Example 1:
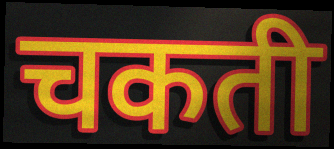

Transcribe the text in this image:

चकती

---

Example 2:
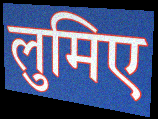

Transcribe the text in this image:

लुमिए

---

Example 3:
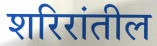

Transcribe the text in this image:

शरिरांतील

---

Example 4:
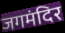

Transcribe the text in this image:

जगमंदिर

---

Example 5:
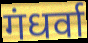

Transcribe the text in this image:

गंधर्वा